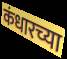
कंधारच्या